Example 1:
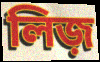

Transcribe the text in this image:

লিজ়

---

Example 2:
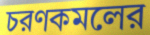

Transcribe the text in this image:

চরণকমলের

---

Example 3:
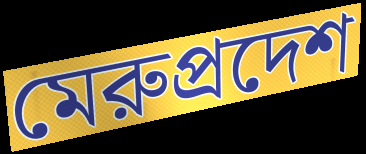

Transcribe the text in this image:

মেরুপ্রদেশ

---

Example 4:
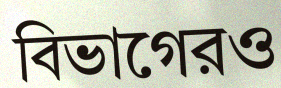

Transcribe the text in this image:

বিভাগেরও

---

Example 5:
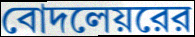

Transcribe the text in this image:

বোদলেয়রের